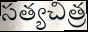
సత్యచిత్ర